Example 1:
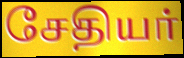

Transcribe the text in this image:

சேதியர்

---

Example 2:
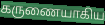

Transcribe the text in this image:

கருணையாகிய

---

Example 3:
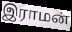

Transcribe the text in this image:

இராமன்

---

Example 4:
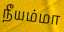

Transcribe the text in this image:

நீயம்மா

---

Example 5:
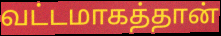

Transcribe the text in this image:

வட்டமாகத்தான்